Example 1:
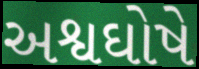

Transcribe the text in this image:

અશ્વઘોષે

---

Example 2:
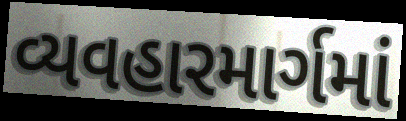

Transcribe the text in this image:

વ્યવહારમાર્ગમાં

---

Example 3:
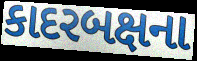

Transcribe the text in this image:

કાદરબક્ષના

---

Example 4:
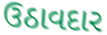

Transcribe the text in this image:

ઉઠાવદાર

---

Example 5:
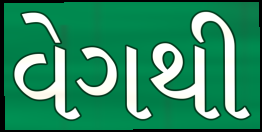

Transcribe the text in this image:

વેગથી